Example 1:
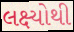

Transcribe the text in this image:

લક્ષ્યોથી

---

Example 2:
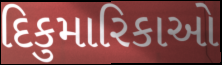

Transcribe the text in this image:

દિકુમારિકાઓ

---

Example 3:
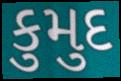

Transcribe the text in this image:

કુમુદ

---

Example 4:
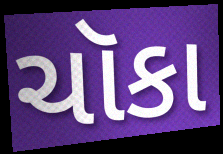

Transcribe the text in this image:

ચૉકા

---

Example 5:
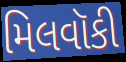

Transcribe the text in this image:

મિલવૉકી